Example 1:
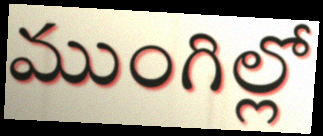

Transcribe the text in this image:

ముంగిల్లో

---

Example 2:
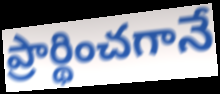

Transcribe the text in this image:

ప్రార్థించగానే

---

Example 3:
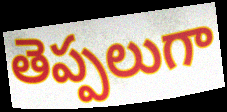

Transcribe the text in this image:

తెప్పలుగా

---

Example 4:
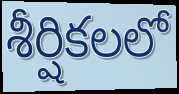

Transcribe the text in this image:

శీర్షికలలో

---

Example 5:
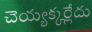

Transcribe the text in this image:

చెయ్యక్కర్లేదు